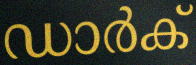
ഡാർക്